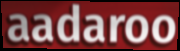
aadaroo